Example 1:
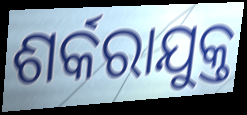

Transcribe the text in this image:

ଶର୍କରାଯୁକ୍ତ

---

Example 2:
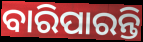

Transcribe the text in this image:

ବାରିପାରନ୍ତି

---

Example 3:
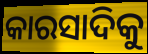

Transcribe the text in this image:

କାରସାଦିକୁ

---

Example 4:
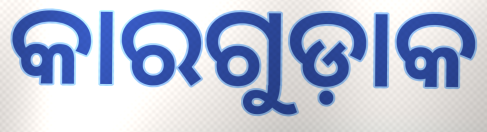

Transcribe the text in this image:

କାରଗୁଡ଼ାକ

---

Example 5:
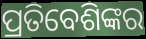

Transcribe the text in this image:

ପ୍ରତିବେଶିଙ୍କର